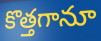
కొత్తగానూ